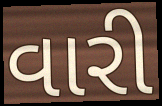
વારી